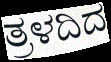
ತ್ರಳದಿದ